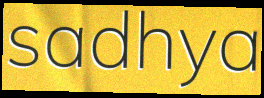
sadhya